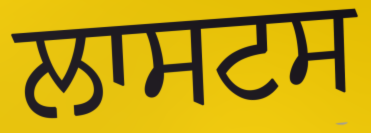
ਲਾਸਟਸ